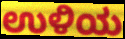
ಉಳಿಯ